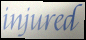
injured